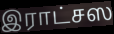
இராட்சஸ